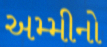
અમ્મીનો